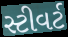
સ્ટીવર્ટ